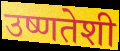
उष्णतेशी